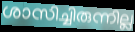
ശാസിച്ചിരുന്നില്ല